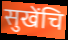
सुखेंचि